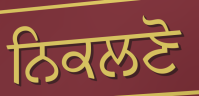
ਨਿਕਲਣੋ